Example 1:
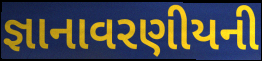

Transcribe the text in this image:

જ્ઞાનાવરણીયની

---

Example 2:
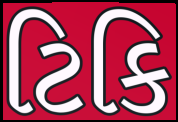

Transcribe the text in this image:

ટિકિ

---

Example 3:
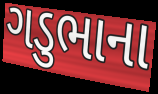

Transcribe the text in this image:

ગડુભાના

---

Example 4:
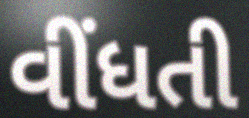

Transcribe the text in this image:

વીંધતી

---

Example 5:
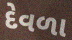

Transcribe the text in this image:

દેવળા